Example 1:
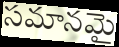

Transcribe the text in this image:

సమానమై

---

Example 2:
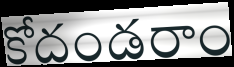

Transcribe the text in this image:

కోదండరాం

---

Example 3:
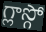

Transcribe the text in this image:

గ్లాస్గో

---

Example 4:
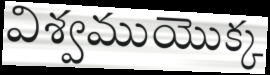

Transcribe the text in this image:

విశ్వముయొక్క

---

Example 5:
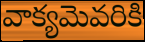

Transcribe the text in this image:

వాక్యమెవరికి